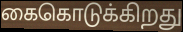
கைகொடுக்கிறது